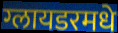
ग्लायडरमधे